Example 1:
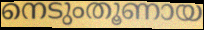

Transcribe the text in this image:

നെടുംതൂണായ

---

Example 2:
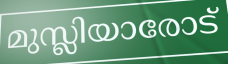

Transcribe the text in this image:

മുസ്ലിയാരോട്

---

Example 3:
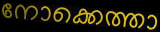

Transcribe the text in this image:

നോക്കെത്താ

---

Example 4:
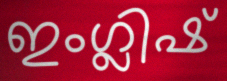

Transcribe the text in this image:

ഇംഗ്ലിഷ്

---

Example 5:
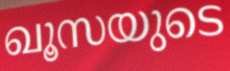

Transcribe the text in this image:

ഖൂസയുടെ